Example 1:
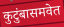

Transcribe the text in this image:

कुटुंबासमवेत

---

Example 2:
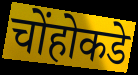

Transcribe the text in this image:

चोंहोकडे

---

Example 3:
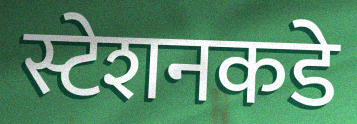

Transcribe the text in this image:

स्टेशनकडे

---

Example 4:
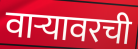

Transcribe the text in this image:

वार्‍यावरची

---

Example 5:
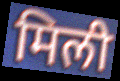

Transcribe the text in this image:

मिली